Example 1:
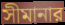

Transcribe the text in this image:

সীমানার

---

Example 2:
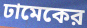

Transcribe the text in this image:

ঢামেকের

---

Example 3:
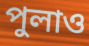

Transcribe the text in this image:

পুলাও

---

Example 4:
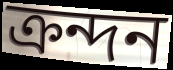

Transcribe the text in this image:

ক্রন্দন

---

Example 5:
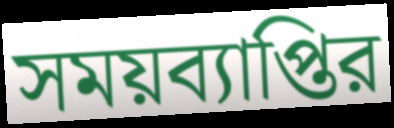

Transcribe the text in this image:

সময়ব্যাপ্তির